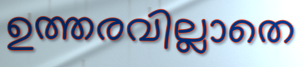
ഉത്തരവില്ലാതെ